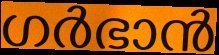
ഗർഭാൻ